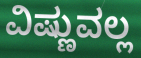
ವಿಷ್ಣುವಲ್ಲ